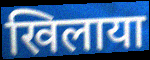
खिलाया